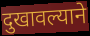
दुखावल्याने